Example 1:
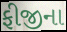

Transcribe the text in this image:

ફીજીના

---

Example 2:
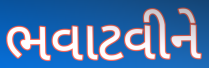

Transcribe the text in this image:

ભવાટવીને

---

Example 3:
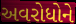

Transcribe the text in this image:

અવરોધોને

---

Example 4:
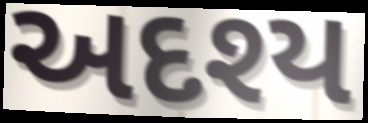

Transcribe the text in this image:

અદશ્ય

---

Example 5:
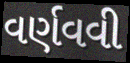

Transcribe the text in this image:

વર્ણવવી